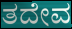
ತದೇವ